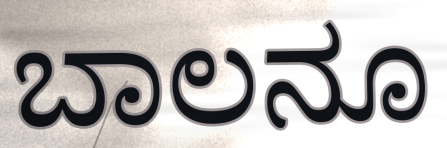
ಬಾಲನೂ